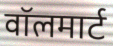
वॉलमार्ट